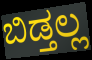
ಬಿಡ್ತಲ್ಲ